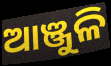
ଆଞ୍ଜୁଳି